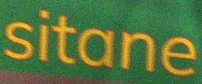
sitane